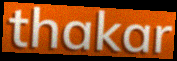
thakar